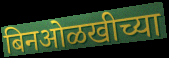
बिनओळखीच्या